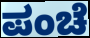
ಪಂಚೆ